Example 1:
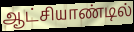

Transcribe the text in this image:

ஆட்சியாண்டில்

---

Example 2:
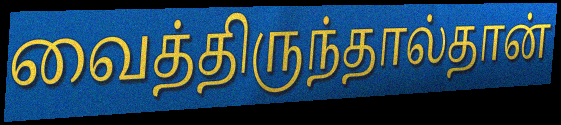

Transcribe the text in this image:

வைத்திருந்தால்தான்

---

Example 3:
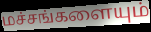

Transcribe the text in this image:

மச்சங்களையும்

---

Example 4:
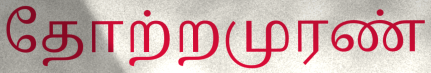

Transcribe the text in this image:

தோற்றமுரண்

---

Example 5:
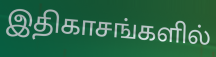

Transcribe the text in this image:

இதிகாசங்களில்